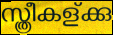
സ്ത്രീകള്ക്കു